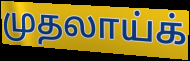
முதலாய்க்